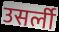
उसर्ली